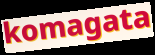
komagata